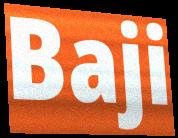
Baji